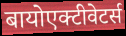
बायोएक्टीवेटर्स